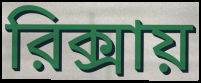
রিক্সায়